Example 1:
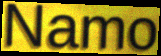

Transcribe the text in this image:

Namo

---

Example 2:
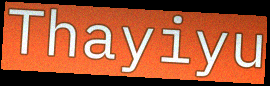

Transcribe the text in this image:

Thayiyu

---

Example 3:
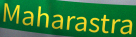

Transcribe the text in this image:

Maharastra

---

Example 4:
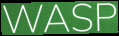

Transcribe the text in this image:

WASP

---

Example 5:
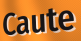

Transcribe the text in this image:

Caute